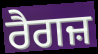
ਰੈਗਜ਼